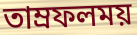
তাম্রফলময়